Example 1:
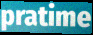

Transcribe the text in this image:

pratime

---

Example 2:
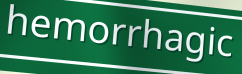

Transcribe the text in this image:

hemorrhagic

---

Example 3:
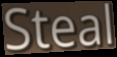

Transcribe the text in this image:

Steal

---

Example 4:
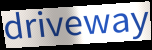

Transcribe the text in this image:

driveway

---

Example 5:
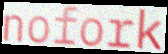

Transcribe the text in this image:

nofork